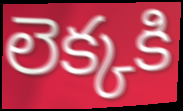
లెక్కకి